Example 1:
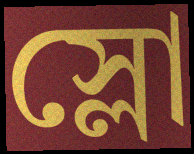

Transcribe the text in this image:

স্লো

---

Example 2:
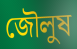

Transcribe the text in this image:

জৌলুষ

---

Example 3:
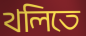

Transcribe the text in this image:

থলিতে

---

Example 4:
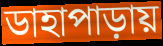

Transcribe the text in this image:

ডাহাপাড়ায়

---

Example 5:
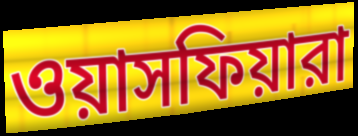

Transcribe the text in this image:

ওয়াসফিয়ারা